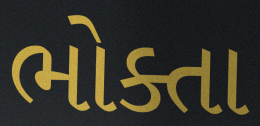
ભોક્તા